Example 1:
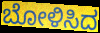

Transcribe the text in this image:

ಬೋಳಿಸಿದ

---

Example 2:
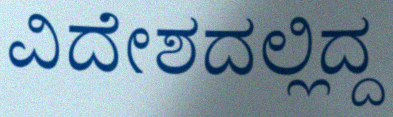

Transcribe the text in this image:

ವಿದೇಶದಲ್ಲಿದ್ದ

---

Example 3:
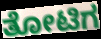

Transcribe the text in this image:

ತೋಟಿಗ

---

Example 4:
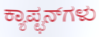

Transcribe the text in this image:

ಕ್ಯಾಪ್ಟನ್‌ಗಳು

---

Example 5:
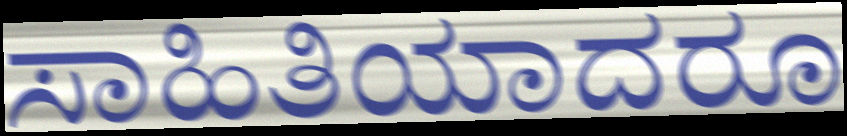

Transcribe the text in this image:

ಸಾಹಿತಿಯಾದರೂ